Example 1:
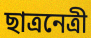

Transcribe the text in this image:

ছাত্রনেত্রী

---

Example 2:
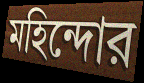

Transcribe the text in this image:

মহিন্দোর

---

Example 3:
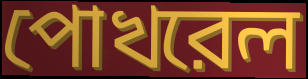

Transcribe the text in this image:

পোখরেল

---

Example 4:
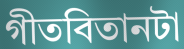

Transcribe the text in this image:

গীতবিতানটা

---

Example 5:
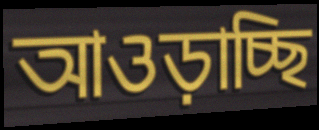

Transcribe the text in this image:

আওড়াচ্ছি